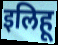
इलिहू